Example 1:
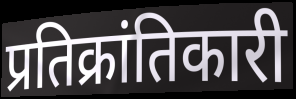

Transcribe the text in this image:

प्रतिक्रांतिकारी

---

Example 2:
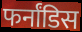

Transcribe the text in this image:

फर्नांडिस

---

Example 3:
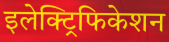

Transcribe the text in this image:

इलेक्ट्रिफिकेशन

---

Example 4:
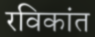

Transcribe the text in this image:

रविकांत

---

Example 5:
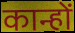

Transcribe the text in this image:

कान्हों